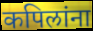
कपिलांना